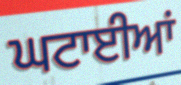
ਘਟਾਈਆਂ